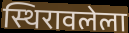
स्थिरावलेला